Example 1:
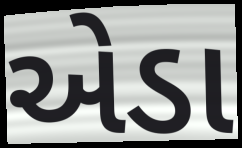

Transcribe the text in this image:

એડા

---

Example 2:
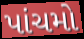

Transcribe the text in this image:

પાંચમો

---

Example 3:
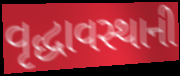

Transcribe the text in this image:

વૃદ્ધાવસ્થાની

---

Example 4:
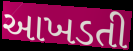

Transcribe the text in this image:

આખડતી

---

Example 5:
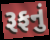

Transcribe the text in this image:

રૂફનું